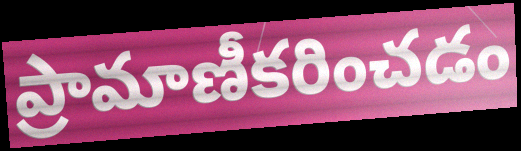
ప్రామాణీకరించడం